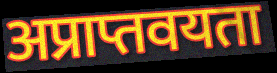
अप्राप्तवयता